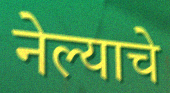
नेल्याचे